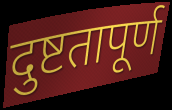
दुष्टतापूर्ण